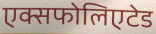
एक्सफोलिएटेड